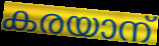
കരയാന്